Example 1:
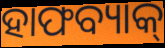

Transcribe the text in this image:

ହାଫବ୍ୟାକ୍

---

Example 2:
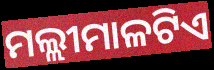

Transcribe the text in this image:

ମଲ୍ଲୀମାଳଟିଏ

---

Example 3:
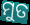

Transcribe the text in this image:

ମୁତ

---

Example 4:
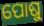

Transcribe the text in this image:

ପୋଷୁ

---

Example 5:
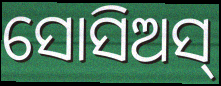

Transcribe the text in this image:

ସୋସିଅସ୍